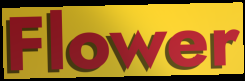
Flower